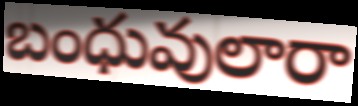
బంధువులారా